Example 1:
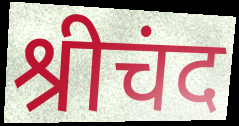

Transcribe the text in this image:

श्रीचंद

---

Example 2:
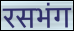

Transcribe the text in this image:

रसभंग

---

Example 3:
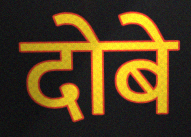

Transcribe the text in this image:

दोबे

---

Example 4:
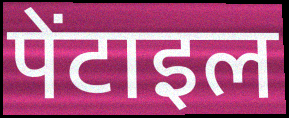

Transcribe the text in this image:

पेंटाइल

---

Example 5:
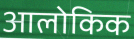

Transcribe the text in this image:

आलोकिक